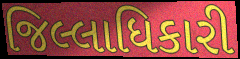
જિલ્લાધિકારી